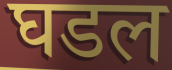
घडल